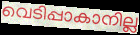
വെടിപ്പാകാനില്ല